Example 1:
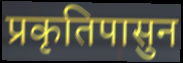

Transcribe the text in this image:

प्रकृतिपासुन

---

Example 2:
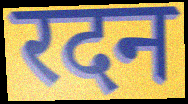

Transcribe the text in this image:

रदन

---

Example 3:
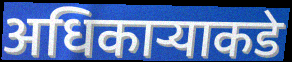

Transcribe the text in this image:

अधिकार्‍याकडे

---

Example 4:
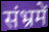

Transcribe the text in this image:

संभ्रमें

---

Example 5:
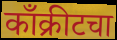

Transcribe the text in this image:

काँक्रीटचा